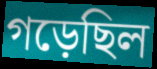
গড়েছিল